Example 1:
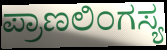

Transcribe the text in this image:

ಪ್ರಾಣಲಿಂಗಸ್ಯ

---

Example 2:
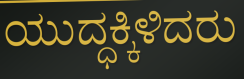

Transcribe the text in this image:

ಯುದ್ಧಕ್ಕಿಳಿದರು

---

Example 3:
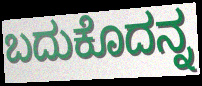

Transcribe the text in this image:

ಬದುಕೊದನ್ನ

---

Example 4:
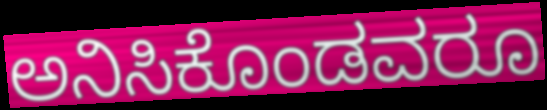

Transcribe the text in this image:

ಅನಿಸಿಕೊಂಡವರೂ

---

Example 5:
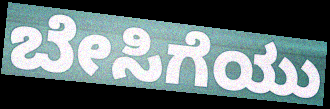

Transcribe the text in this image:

ಬೇಸಿಗೆಯು